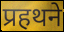
प्रहथने